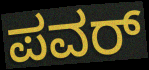
ಪವರ್